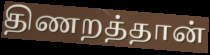
திணறத்தான்